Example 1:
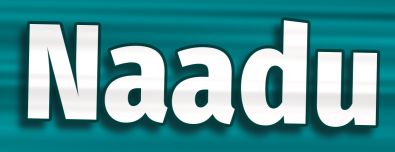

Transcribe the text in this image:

Naadu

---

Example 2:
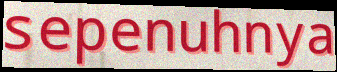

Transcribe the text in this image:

sepenuhnya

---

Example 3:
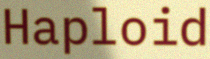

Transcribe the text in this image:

Haploid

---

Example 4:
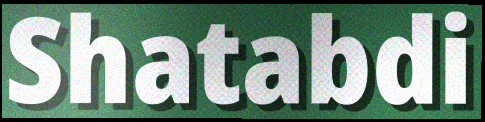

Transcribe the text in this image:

Shatabdi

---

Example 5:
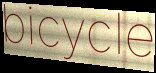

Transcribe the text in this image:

bicycle